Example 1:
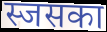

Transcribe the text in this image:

स्जसका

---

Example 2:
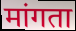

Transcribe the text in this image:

मांगता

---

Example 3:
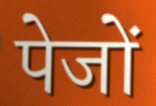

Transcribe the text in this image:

पेजों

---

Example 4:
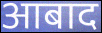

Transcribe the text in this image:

आबाद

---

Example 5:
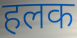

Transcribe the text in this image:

हलक